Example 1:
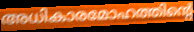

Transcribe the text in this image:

അധികാരമോഹത്തിന്റെ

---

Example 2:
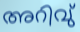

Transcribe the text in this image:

അറിവു്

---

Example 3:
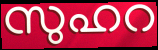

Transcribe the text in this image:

സുഹറ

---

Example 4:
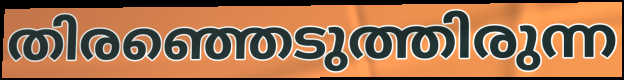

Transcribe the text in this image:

തിരഞ്ഞെടുത്തിരുന്ന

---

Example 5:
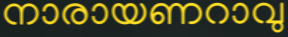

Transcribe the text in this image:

നാരായണറാവു